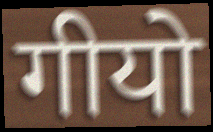
गीयो